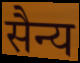
सैन्य